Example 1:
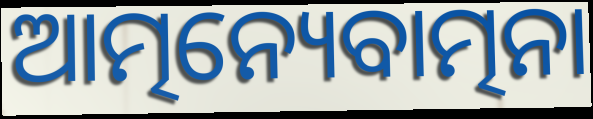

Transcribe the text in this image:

ଆତ୍ମନ୍ୟେବାତ୍ମନା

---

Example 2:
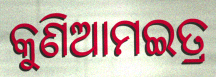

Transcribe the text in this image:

କୁଣିଆମଇତ୍ର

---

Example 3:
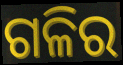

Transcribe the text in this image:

ଗଳିର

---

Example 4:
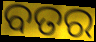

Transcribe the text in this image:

ବତର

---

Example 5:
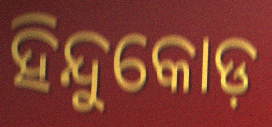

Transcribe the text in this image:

ହିନ୍ଦୁକୋଡ଼